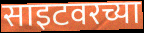
साइटवरच्या